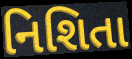
નિશિતા